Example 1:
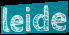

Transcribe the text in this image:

leide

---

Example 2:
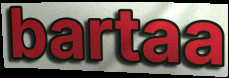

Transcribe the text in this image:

bartaa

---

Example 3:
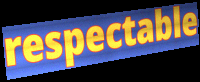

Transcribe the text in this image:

respectable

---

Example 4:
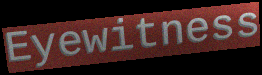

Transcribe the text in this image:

Eyewitness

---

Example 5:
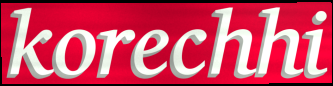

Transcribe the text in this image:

korechhi